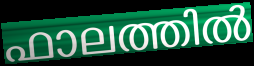
ഫാലത്തിൽ